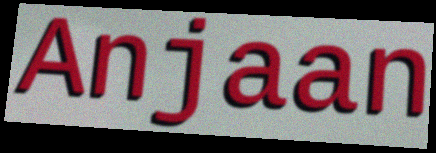
Anjaan